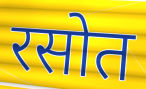
रसोत